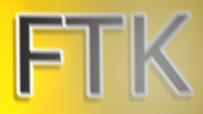
FTK